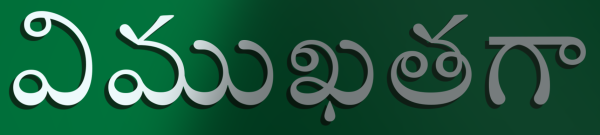
విముఖతగా